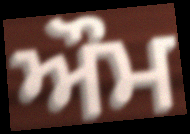
ਔਮ